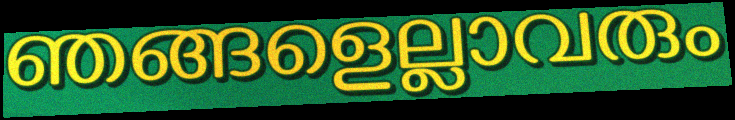
ഞങ്ങളെല്ലാവരും